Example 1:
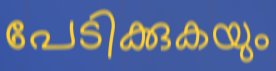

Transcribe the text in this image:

പേടിക്കുകയും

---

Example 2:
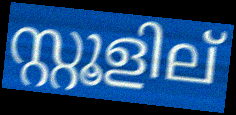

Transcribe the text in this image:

സ്റ്റൂളില്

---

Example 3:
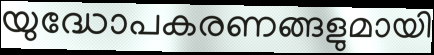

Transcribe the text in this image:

യുദ്ധോപകരണങ്ങളുമായി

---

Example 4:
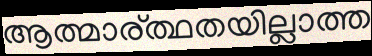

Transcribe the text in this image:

ആത്മാര്ത്ഥതയില്ലാത്ത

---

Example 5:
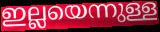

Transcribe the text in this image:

ഇല്ലയെന്നുള്ള